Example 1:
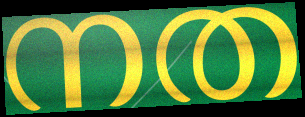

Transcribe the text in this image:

നത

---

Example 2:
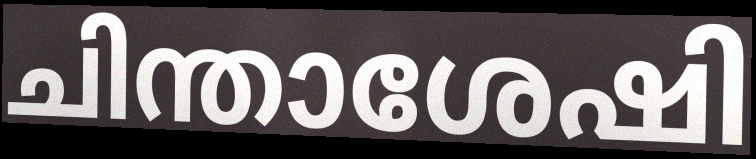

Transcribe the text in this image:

ചിന്താശേഷി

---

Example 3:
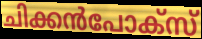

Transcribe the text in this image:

ചിക്കൻപോക്സ്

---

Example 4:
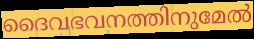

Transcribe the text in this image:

ദൈവഭവനത്തിനുമേൽ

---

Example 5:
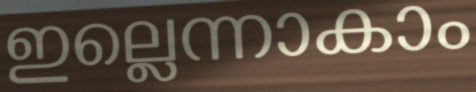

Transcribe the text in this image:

ഇല്ലെന്നാകാം